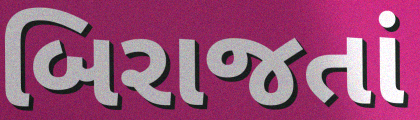
બિરાજતાં